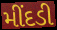
મીંદડી